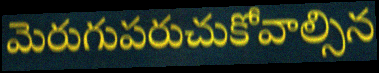
మెరుగుపరుచుకోవాల్సిన